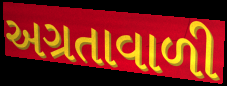
અગ્રતાવાળી